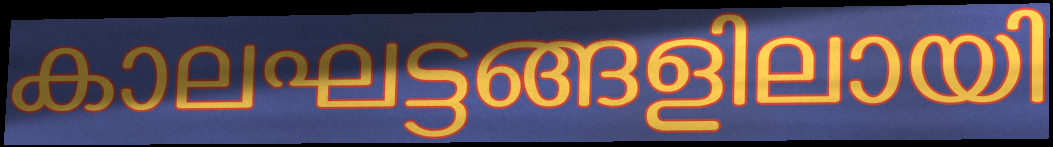
കാലഘട്ടങ്ങളിലായി